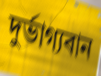
দুর্ভাগ্যবান